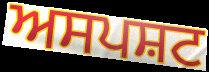
ਅਸਪਸ਼ਟ